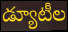
డ్యూటీల